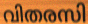
വിതരസി